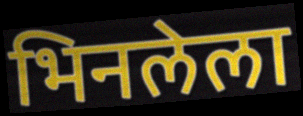
भिनलेला